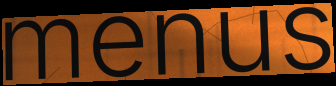
menus